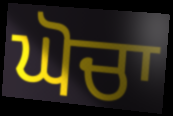
ਘੋਚਾ